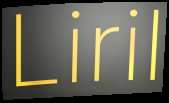
Liril